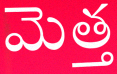
మెత్త